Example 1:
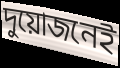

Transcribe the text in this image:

দুয়োজনেই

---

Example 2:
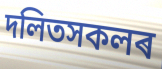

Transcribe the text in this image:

দলিতসকলৰ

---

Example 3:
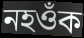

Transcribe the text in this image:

নহওঁক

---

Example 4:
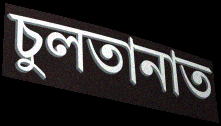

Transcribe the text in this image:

চুলতানাত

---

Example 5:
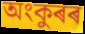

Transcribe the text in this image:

অংকুৰৰ